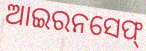
ଆଇରନସେଫ୍